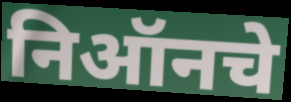
निऑनचे